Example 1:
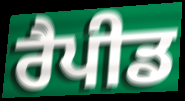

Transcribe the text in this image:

ਰੈਪੀਡ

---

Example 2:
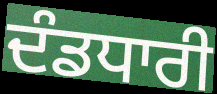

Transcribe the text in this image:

ਦੰਡਧਾਰੀ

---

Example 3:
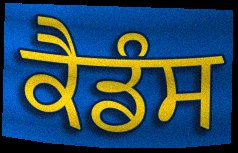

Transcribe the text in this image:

ਕੈਡੰਸ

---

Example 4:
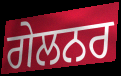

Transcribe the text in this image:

ਗੇਲਨਰ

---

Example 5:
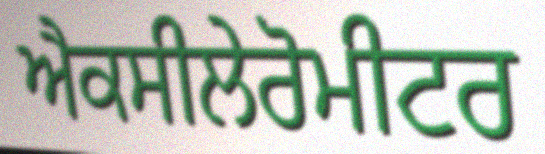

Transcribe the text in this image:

ਐਕਸੀਲੇਰੋਮੀਟਰ